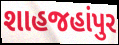
શાહજહાંપુર